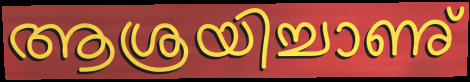
ആശ്രയിച്ചാണു്